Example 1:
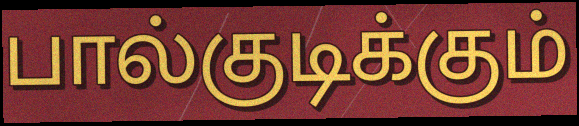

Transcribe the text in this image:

பால்குடிக்கும்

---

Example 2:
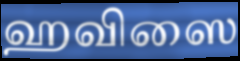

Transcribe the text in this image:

ஹவிஸை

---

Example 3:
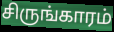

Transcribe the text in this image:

சிருங்காரம்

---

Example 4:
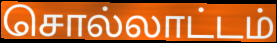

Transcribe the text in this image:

சொல்லாட்டம்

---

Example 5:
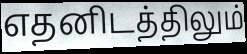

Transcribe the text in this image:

எதனிடத்திலும்